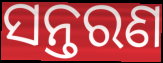
ସନ୍ତରଣ